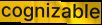
cognizable